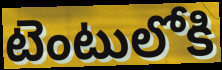
టెంటులోకి